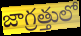
జాగ్రత్తులో